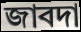
জাবদা